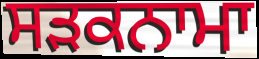
ਸਡ਼ਕਨਾਮਾ